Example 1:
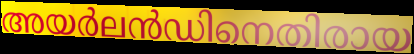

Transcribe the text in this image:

അയർലൻഡിനെതിരായ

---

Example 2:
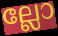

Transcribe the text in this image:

ല്ലോ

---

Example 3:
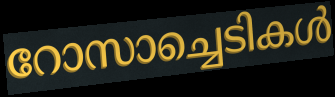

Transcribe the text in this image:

റോസാച്ചെടികൾ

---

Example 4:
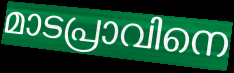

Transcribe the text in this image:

മാടപ്രാവിനെ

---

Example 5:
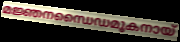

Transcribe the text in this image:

മജ്ഞനന്ധൈഡമൂകനായ്